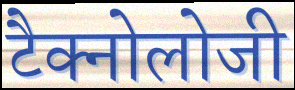
टैक्नोलोजी